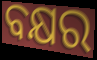
ବକ୍ଷର